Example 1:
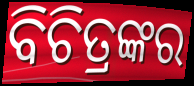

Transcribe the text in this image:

ବିଚିତ୍ରଙ୍କର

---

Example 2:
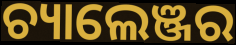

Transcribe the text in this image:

ଚ୍ୟାଲେଞ୍ଜର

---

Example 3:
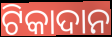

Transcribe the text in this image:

ଟିକାଦାନ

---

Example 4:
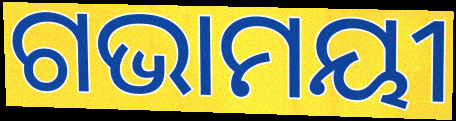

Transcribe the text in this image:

ଗଭାମୟୀ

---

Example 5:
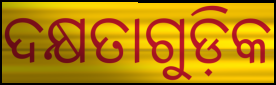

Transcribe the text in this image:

ଦକ୍ଷତାଗୁଡ଼ିକ